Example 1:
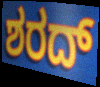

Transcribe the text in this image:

ಶರದ್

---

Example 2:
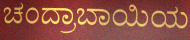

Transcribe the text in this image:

ಚಂದ್ರಾಬಾಯಿಯ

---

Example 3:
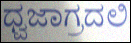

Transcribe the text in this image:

ಧ್ವಜಾಗ್ರದಲಿ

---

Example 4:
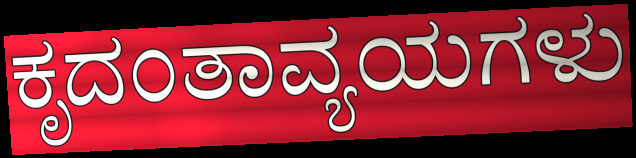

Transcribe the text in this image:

ಕೃದಂತಾವ್ಯಯಗಳು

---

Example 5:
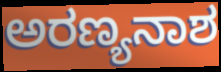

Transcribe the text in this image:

ಅರಣ್ಯನಾಶ